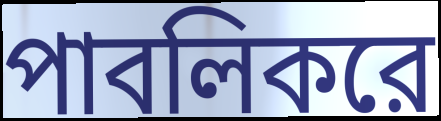
পাবলিকরে